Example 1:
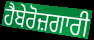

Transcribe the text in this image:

ਹੈਬੇਰੋਜ਼ਗਾਰੀ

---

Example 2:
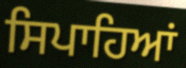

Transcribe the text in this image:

ਸਿਪਾਹਿਆਂ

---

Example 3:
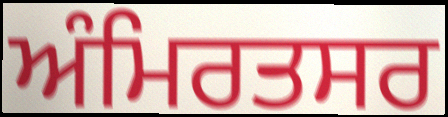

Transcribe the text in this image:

ਅੰਮਿਰਤਸਰ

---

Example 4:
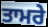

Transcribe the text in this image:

ਤਾਮਰੇ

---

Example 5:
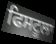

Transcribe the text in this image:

ਫਿਸਟੂਲਾ